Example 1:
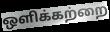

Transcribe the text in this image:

ஒளிக்கற்றை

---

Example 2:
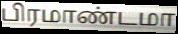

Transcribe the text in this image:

பிரமாண்டமா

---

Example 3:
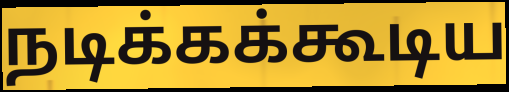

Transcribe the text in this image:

நடிக்கக்கூடிய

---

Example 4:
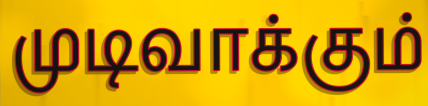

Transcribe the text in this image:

முடிவாக்கும்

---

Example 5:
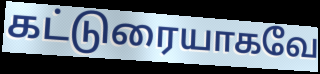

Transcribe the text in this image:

கட்டுரையாகவே